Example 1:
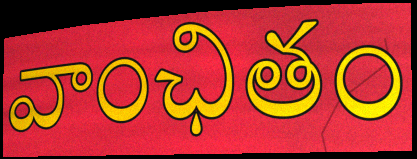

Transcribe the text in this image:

వాంఛితం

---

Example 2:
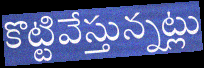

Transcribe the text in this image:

కొట్టివేస్తున్నట్లు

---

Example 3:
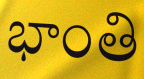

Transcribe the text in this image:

భాంతి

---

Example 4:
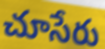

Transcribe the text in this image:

చూసేరు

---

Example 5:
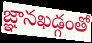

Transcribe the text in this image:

జ్ఞానఖడ్గంతో